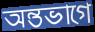
অন্তভাগে